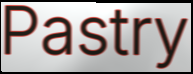
Pastry